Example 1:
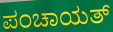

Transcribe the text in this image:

ಪಂಚಾಯತ್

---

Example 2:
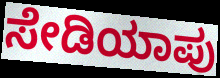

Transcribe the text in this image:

ಸೇಡಿಯಾಪು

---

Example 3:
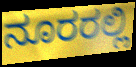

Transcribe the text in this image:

ನೂರರಲ್ಲಿ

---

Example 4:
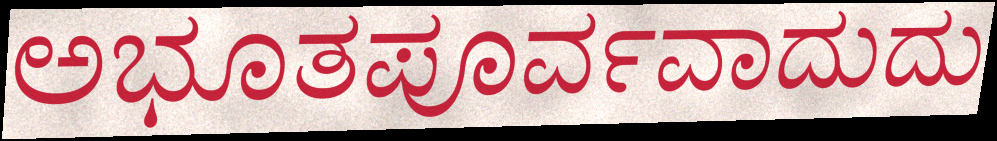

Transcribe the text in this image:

ಅಭೂತಪೂರ್ವವಾದುದು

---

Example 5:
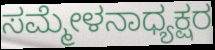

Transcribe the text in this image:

ಸಮ್ಮೇಳನಾಧ್ಯಕ್ಷರ